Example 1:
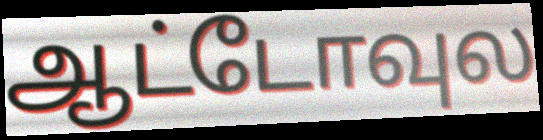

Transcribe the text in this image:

ஆட்டோவுல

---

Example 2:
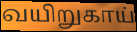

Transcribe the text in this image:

வயிறுகாய்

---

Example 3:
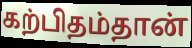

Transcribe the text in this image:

கற்பிதம்தான்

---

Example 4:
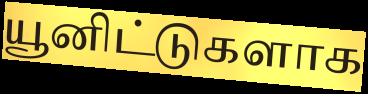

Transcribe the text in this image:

யூனிட்டுகளாக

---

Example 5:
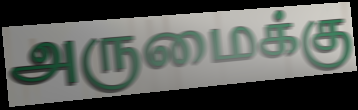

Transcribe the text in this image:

அருமைக்கு